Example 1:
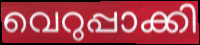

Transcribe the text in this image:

വെറുപ്പാക്കി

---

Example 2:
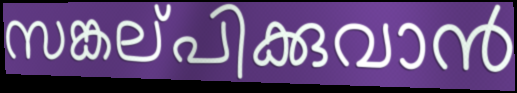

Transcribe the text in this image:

സങ്കല്‌പിക്കുവാൻ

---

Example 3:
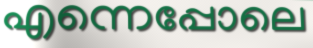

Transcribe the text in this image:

എന്നെപ്പോലെ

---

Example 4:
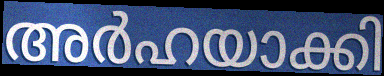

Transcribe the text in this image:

അർഹയാക്കി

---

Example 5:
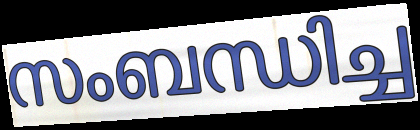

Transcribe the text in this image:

സംബന്ധിച്ച